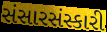
સંસારસંસ્કારી